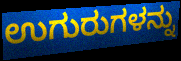
ಉಗುರುಗಳನ್ನು